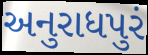
અનુરાધપુરં